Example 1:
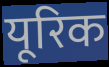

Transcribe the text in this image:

यूरिक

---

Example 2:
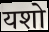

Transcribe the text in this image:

यशो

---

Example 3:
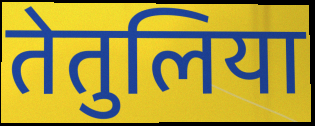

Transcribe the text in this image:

तेतुलिया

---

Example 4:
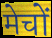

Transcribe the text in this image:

मेचों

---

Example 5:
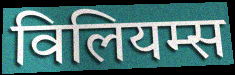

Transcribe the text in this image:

विलियम्‍स